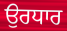
ਉਰਧਾਰ